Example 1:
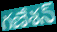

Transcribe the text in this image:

గణేశన్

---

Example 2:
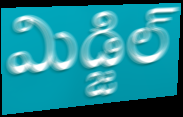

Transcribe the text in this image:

మిడ్జిల్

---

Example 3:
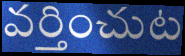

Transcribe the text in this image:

వర్తించుట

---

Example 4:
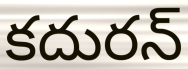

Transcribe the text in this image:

కదురన్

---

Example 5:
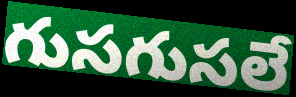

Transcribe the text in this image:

గుసగుసలే